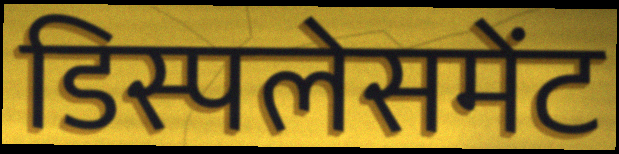
डिस्पलेसमेंट